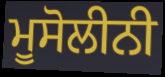
ਮੂਸੋਲੀਨੀ